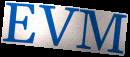
EVM